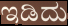
ಇಡಿದು